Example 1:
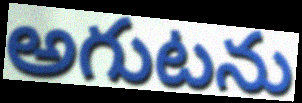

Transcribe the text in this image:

అగుటను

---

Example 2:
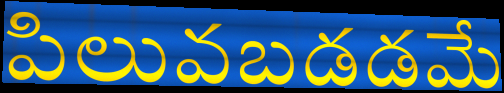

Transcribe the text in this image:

పిలువబడడమే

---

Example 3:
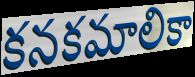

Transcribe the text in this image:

కనకమాలికా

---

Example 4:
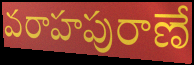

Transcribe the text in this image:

వరాహపురాణే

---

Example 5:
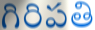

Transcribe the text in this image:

గిరిపతి